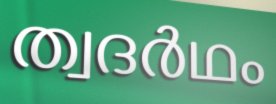
ത്വദർഥം